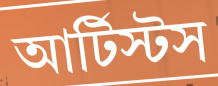
আর্টিস্টস